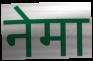
नेमा